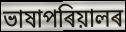
ভাষাপৰিয়ালৰ